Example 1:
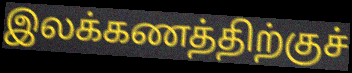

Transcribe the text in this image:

இலக்கணத்திற்குச்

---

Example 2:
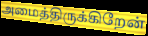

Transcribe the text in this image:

அமைத்திருக்கிறேன்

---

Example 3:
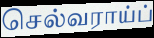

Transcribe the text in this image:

செல்வராய்ப்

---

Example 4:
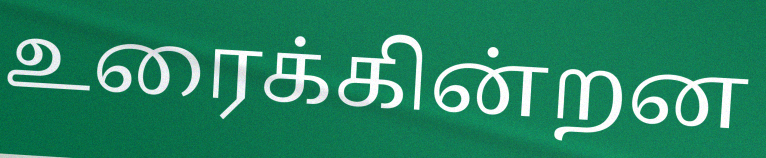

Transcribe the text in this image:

உரைக்கின்றன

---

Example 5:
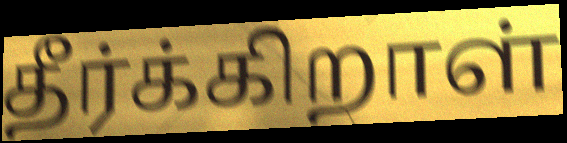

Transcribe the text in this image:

தீர்க்கிறாள்